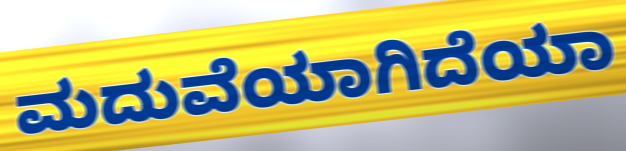
ಮದುವೆಯಾಗಿದೆಯಾ